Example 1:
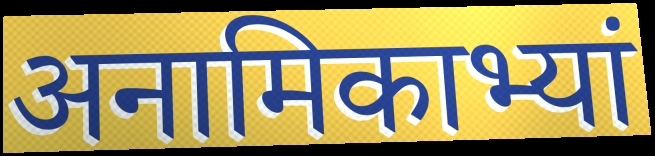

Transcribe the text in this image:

अनामिकाभ्यां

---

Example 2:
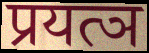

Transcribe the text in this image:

प्रयत्ञ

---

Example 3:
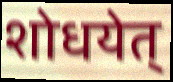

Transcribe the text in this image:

शोधयेत्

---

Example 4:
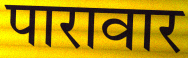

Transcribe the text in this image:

पारावार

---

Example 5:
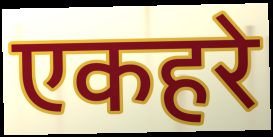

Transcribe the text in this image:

एकहरे